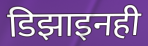
डिझाइनही